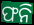
ଫନି